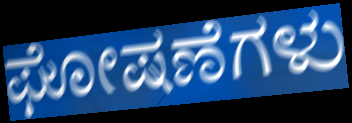
ಘೋಷಣೆಗಳು